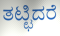
ತಟ್ಟಿದರೆ